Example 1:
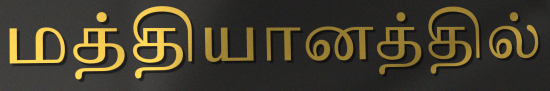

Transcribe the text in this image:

மத்தியானத்தில்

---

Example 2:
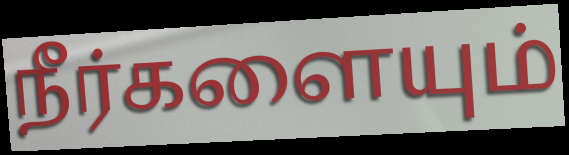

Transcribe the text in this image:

நீர்களையும்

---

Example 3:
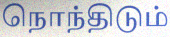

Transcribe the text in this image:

நொந்திடும்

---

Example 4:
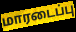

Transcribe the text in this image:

மாரடைப்பு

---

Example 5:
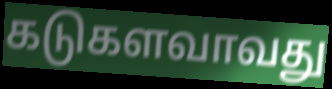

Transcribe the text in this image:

கடுகளவாவது